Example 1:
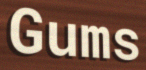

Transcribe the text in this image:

Gums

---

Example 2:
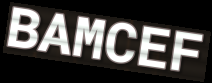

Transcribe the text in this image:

BAMCEF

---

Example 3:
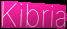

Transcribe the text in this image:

Kibria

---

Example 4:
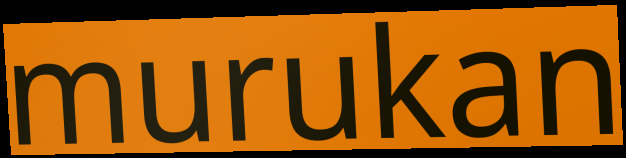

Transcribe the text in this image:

murukan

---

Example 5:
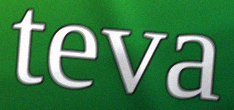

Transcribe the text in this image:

teva